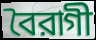
বৈরাগী